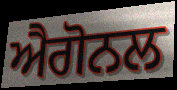
ਐਗੋਨਲ